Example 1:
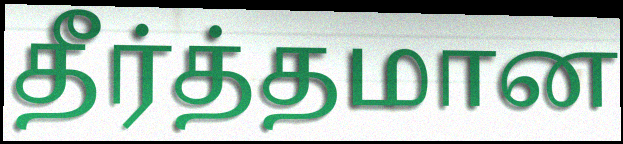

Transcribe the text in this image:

தீர்த்தமான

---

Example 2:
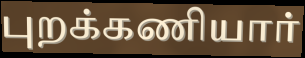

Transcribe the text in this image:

புறக்கணியார்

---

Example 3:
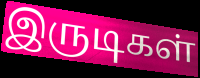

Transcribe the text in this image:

இருடிகள்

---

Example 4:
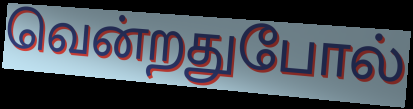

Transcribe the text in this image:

வென்றதுபோல்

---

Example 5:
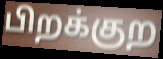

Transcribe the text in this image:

பிறக்குற